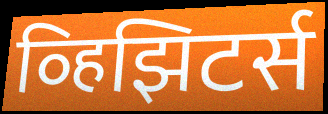
व्हिझिटर्स